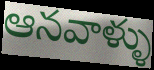
ఆనవాళ్ళు